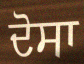
ਦੋਸਾ